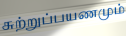
சுற்றுப்பயணமும்